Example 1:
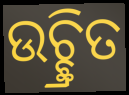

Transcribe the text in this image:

ଉଚ୍ଛ୍ରିତ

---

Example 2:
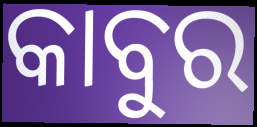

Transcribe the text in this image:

କାବୁର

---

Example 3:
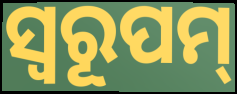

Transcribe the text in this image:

ସ୍ୱରୂପମ୍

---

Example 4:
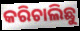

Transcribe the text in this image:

କରିଚାଲିଛୁ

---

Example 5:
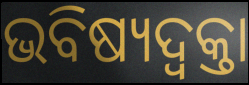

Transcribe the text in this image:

ଭବିଷ୍ୟଦ୍ବକ୍ତା